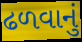
ઢળવાનું